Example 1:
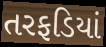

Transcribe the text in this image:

તરફડિયાં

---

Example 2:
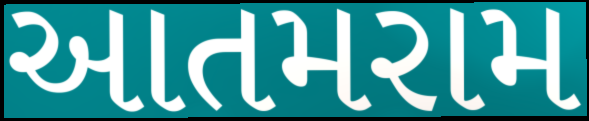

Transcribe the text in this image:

આતમરામ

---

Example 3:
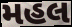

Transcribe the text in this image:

મહલ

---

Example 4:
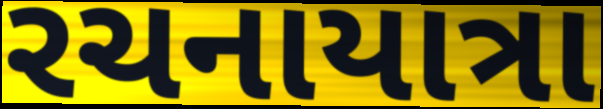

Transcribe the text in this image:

રચનાયાત્રા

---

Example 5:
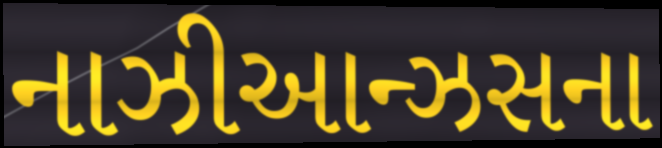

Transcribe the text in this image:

નાઝીઆન્ઝસના